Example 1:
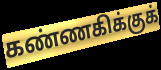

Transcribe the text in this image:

கண்ணகிக்குக்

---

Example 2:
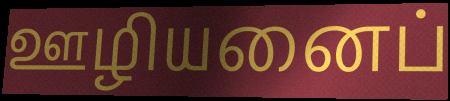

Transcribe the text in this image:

ஊழியனைப்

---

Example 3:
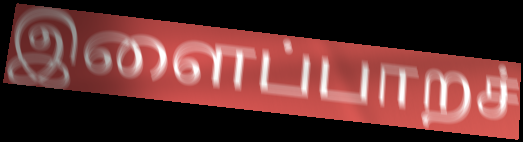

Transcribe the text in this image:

இளைப்பாறச்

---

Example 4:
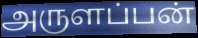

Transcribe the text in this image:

அருளப்பன்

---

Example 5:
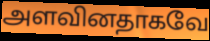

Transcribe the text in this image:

அளவினதாகவே